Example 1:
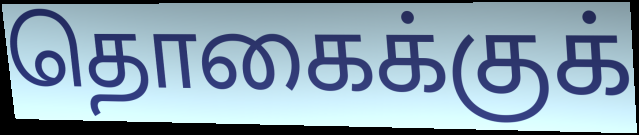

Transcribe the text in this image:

தொகைக்குக்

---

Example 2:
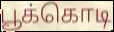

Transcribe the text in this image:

பூக்கொடி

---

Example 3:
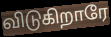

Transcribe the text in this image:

விடுகிறாரே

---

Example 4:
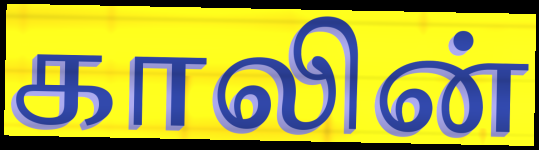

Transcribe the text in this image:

காலின்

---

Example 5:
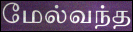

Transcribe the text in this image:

மேல்வந்த